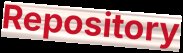
Repository